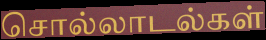
சொல்லாடல்கள்